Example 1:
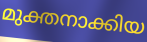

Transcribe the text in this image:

മുക്തനാക്കിയ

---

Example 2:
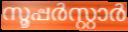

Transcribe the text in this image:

സൂപ്പർസ്റ്റാർ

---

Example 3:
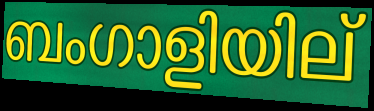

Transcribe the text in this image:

ബംഗാളിയില്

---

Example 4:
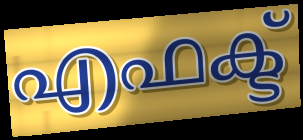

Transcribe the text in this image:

എഫക്ട്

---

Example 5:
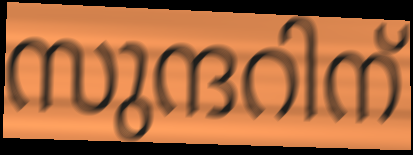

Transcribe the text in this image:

സുന്ദറിന്